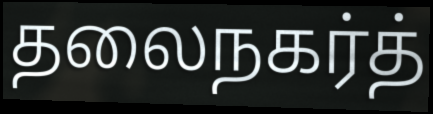
தலைநகர்த்